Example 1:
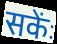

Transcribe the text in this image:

सकेंः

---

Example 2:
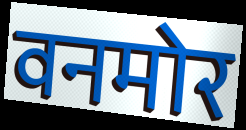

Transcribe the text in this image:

वनमोर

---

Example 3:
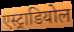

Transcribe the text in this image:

एस्ट्राडियोल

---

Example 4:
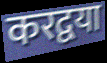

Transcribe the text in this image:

करद्वया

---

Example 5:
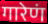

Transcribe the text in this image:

गारेणं